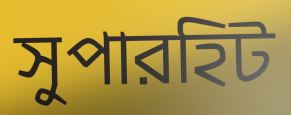
সুপারহিট